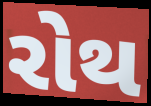
રોથ